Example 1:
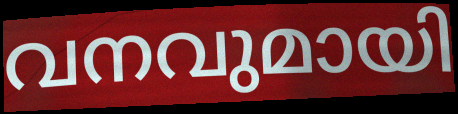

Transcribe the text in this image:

വനവുമായി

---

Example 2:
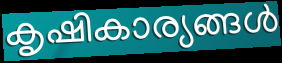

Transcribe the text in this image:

കൃഷികാര്യങ്ങൾ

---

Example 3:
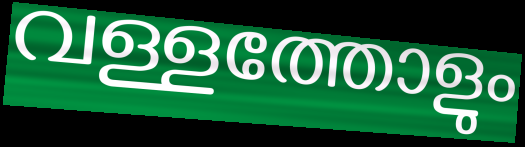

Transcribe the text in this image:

വള്ളത്തോളും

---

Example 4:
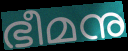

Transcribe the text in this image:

ഭീമനു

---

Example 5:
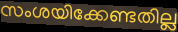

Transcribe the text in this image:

സംശയിക്കേണ്ടതില്ല